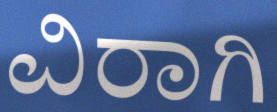
ವಿರಾಗಿ